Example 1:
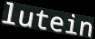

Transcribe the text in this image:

lutein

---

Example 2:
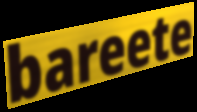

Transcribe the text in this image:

bareete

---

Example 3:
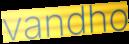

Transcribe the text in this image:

vandho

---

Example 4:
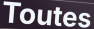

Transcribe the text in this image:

Toutes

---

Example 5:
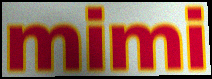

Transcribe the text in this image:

mimi